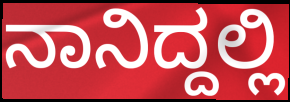
ನಾನಿದ್ದಲ್ಲಿ